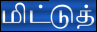
மிட்டுத்